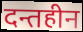
दन्तहीन